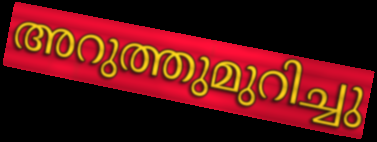
അറുത്തുമുറിച്ചു